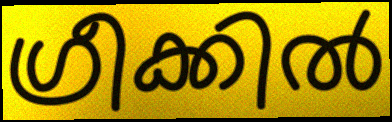
ഗ്രീക്കിൽ